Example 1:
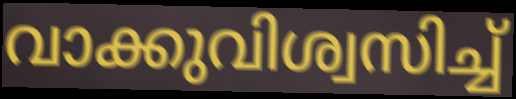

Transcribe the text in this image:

വാക്കുവിശ്വസിച്ച്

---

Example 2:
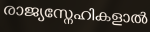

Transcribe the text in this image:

രാജ്യസ്നേഹികളാൽ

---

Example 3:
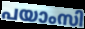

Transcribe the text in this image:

പയാംസി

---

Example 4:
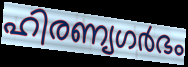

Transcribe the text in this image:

ഹിരണ്യഗർഭം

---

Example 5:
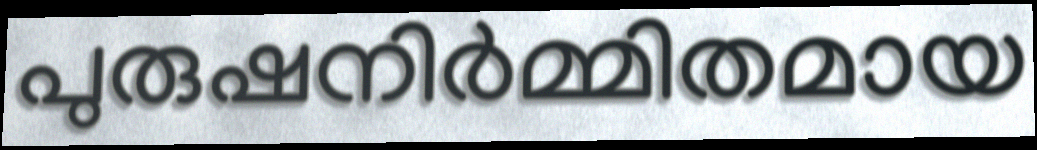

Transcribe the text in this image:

പുരുഷനിർമ്മിതമായ